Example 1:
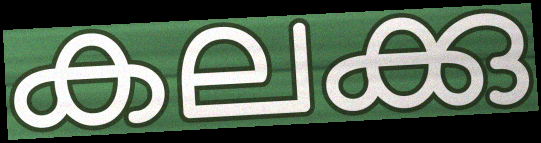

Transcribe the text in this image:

കലക്കു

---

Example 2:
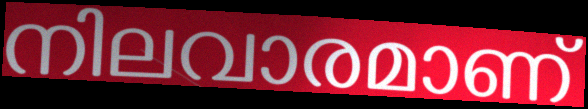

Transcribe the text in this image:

നിലവാരമാണ്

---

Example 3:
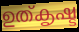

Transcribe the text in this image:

ഉത്കൃഷ്ട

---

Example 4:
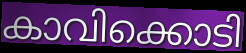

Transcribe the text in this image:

കാവിക്കൊടി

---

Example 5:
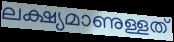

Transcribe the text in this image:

ലക്ഷ്യമാണുള്ളത്